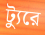
ট্যুরে